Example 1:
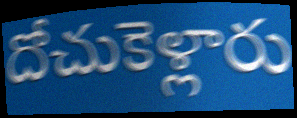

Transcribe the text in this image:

దోచుకెళ్లారు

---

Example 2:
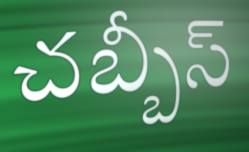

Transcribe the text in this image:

చబ్బీస్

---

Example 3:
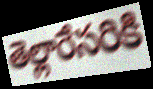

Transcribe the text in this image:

తెల్లారేసరికి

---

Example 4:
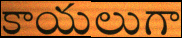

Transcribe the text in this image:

కాయలుగా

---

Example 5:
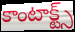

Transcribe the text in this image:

కాంటాక్ట్స్